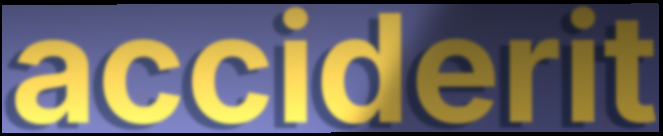
acciderit